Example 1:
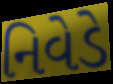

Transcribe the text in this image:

નિવેડે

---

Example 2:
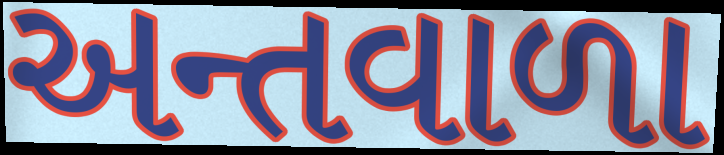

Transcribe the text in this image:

અન્તવાળા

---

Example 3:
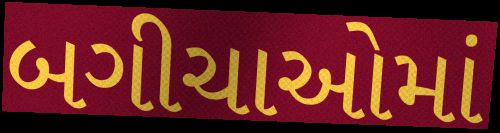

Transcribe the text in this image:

બગીચાઓમાં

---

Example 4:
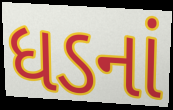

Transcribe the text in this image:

ધડનાં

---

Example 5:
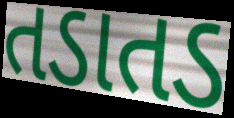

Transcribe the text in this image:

તડાતડ